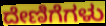
ದೇಣಿಗೆಗಳು